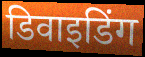
डिवाइडिंग